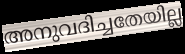
അനുവദിച്ചതേയില്ല